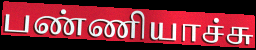
பண்ணியாச்சு